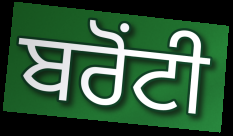
ਬਰੋਂਟੀ